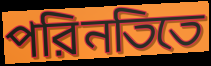
পরিনতিতে